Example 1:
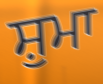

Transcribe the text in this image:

ਸ਼ੁਮਾ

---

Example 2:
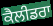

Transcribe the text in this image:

ਕੈਲੀਡਰਾ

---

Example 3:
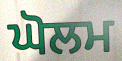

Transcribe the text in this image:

ਘੋਲਮ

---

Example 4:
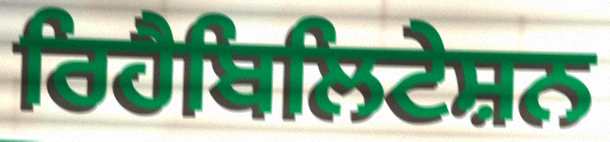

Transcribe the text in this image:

ਰਿਹੈਬਿਲਿਟੇਸ਼ਨ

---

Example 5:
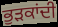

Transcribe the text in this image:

ਭੁੜਕਾਂਦੀ